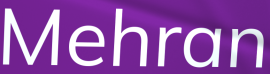
Mehran